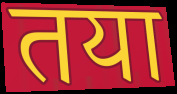
तया